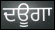
ਦਊਗਾ